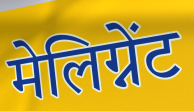
मेलिग्नेंट